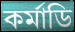
কর্মাডি